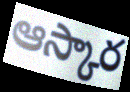
ఆస్కార